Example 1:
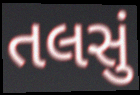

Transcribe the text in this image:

તલસું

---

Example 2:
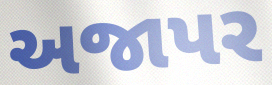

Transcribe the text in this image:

અજાપર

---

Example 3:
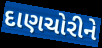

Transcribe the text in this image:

દાણચોરીને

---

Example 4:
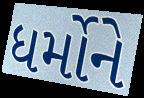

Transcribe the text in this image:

ધર્મોને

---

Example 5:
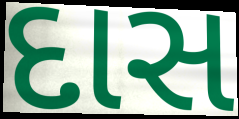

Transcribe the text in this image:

દાસ